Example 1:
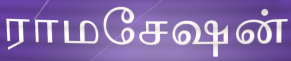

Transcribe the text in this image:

ராமசேஷன்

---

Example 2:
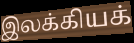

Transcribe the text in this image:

இலக்கியக்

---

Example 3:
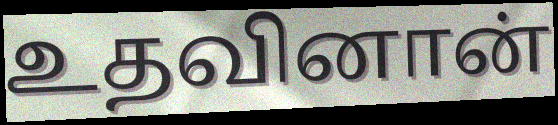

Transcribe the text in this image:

உதவினான்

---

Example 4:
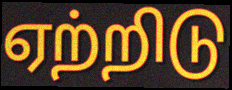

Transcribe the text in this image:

ஏற்றிடு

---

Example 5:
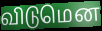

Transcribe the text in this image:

விடுமென